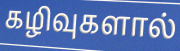
கழிவுகளால்